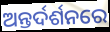
ଅନ୍ତର୍ଦର୍ଶନରେ